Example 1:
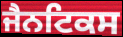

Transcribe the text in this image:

ਜੈਨਟਿਕਸ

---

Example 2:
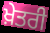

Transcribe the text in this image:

ਖ਼ੇਤਰੀ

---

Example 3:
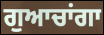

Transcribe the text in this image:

ਗੁਆਚਾਂਗਾ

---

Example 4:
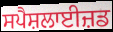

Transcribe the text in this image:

ਸਪੈਸ਼ਲਾਈਜ਼ਡ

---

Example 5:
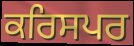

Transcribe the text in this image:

ਕਰਿਸਪਰ